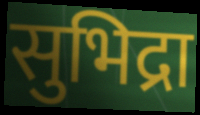
सुभिद्रा